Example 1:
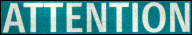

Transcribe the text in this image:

ATTENTION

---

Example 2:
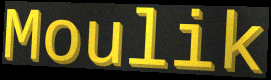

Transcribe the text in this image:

Moulik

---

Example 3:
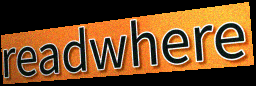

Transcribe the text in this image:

readwhere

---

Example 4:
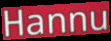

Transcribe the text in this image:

Hannu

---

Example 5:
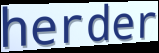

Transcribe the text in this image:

herder